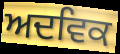
ਅਦਵਿਕ